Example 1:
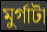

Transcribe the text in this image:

মুর্গাটা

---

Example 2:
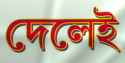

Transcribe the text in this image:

দেলেই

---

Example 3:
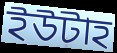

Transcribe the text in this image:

ইউটাহ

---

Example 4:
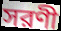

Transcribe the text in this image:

সরণী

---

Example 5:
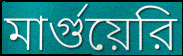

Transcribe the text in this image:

মার্গুয়েরি